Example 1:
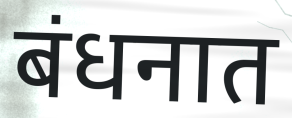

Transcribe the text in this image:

बंधनात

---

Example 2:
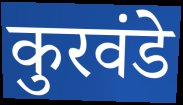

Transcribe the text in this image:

कुरवंडे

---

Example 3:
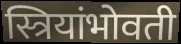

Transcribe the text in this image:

स्त्रियांभोवती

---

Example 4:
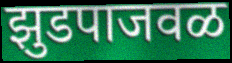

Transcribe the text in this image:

झुडपाजवळ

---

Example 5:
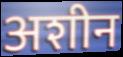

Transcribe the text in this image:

अशीन